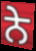
ਨੇ